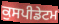
ਕੁਸਪੀਡੇਟਮ